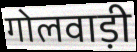
गोलवाड़ी